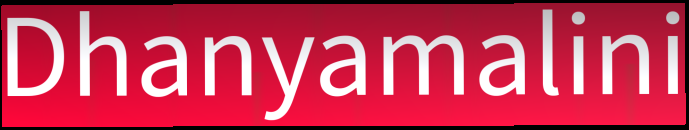
Dhanyamalini